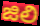
జిలి